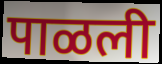
पाळली